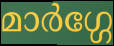
മാർഗ്ഗേ